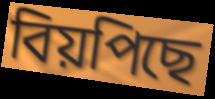
বিয়পিছে